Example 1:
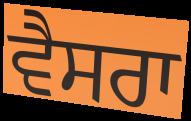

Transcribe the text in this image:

ਵੈਸਰਾ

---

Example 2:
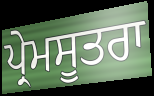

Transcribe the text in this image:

ਪ੍ਰੇਮਸੂਤਰਾ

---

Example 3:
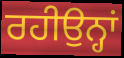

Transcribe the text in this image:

ਰਹੀਉਨ੍ਹਾਂ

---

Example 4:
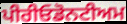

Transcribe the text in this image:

ਪੀਰੀਓਡੋਨਟੀਅਮ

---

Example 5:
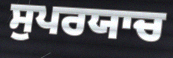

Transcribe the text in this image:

ਸੁਪਰਯਾਚ